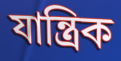
যান্ত্ৰিক